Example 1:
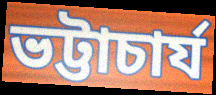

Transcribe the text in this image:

ভট্টাচার্য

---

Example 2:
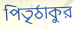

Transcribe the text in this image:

পিতৃঠাকুর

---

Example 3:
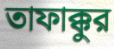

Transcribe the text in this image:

তাফাক্কুর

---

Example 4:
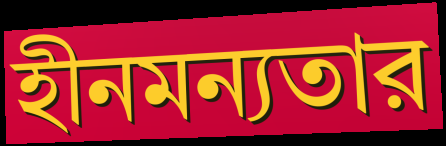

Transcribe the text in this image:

হীনমন্যতার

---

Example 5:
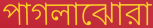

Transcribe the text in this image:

পাগলাঝোরা